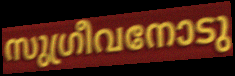
സുഗ്രീവനോടു